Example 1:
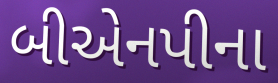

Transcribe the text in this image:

બીએનપીના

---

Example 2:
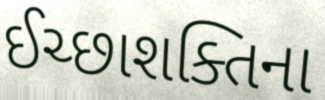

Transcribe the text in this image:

ઈચ્છાશક્તિના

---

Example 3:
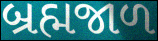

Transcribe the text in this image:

બ્રહ્મજાળ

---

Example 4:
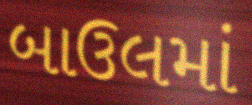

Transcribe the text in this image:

બાઉલમાં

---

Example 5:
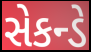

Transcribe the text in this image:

સેકન્ડે